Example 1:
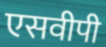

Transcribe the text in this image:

एसवीपी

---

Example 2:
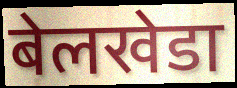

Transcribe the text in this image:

बेलखेडा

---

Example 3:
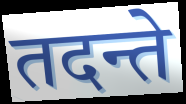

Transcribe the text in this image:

तदन्ते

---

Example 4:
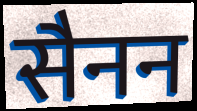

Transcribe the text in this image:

सैनन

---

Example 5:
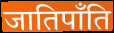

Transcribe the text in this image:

जातिपाँति